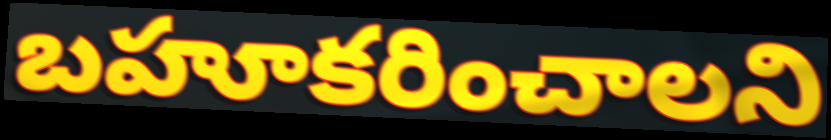
బహూకరించాలని